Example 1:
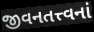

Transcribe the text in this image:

જીવનતત્ત્વનાં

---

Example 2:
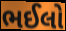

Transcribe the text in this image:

ભઈલો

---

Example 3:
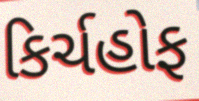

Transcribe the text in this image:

કિર્ચહોફ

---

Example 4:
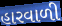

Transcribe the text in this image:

હારવાળી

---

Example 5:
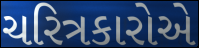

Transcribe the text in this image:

ચરિત્રકારોએ